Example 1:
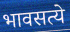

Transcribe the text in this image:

भावसत्ये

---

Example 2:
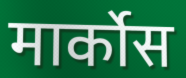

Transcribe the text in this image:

मार्कोस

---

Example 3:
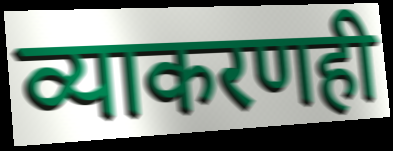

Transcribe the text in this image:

व्याकरणही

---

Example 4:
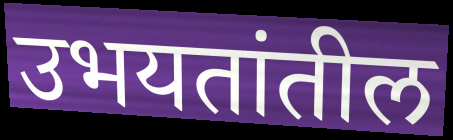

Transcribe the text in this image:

उभयतांतील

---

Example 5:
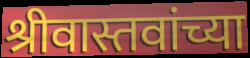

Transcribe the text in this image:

श्रीवास्तवांच्या